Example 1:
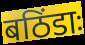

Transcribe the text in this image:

बठिंडाः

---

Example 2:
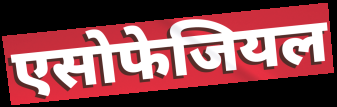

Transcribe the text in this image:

एसोफेजियल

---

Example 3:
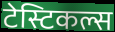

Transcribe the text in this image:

टेस्टिकल्स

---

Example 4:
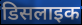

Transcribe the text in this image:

डिसलाइक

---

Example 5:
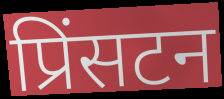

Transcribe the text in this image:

प्रिंसटन